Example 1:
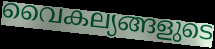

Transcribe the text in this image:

വൈകല്യങ്ങളുടെ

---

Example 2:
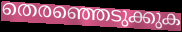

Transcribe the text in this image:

തെരഞ്ഞെടുക്കുക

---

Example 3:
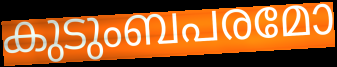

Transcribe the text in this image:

കുടുംബപരമോ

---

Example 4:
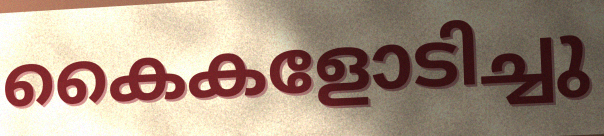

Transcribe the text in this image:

കൈകളോടിച്ചു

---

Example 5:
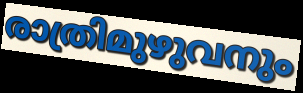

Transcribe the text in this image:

രാത്രിമുഴുവനും